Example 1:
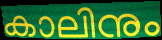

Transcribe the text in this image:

കാലിനും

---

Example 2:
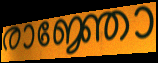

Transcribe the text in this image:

രാജ്ഞോ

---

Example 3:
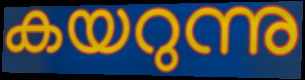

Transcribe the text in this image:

കയറുന്നു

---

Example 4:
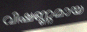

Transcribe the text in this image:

വിഷണ്ണമായ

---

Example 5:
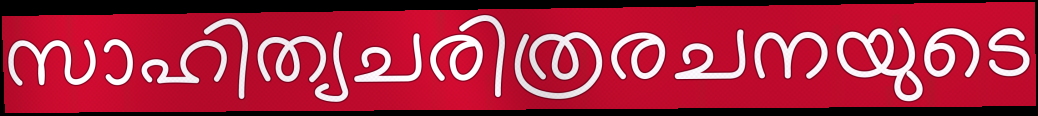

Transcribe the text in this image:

സാഹിത്യചരിത്രരചനയുടെ